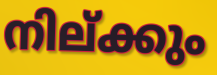
നില്ക്കും